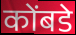
कोंबडे